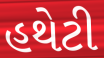
હથેટી